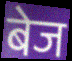
बेज